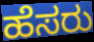
ಹೆಸರು